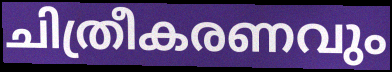
ചിത്രീകരണവും